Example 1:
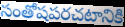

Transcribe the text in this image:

సంతోషపరచటానికి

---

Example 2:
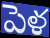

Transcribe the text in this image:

పెళ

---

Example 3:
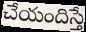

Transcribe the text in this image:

చేయందిస్తే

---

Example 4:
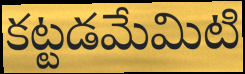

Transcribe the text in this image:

కట్టడమేమిటి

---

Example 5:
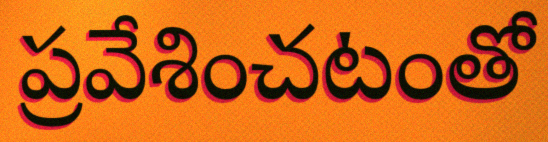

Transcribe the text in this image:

ప్రవేశించటంతో